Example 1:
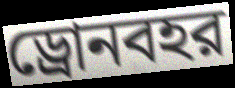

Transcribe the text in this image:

ড্রোনবহর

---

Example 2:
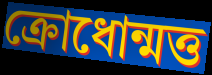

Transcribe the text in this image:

ক্রোধোন্মত্ত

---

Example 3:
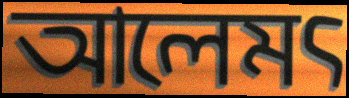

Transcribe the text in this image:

আলেমৎ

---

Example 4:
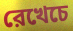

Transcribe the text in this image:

রেখেচে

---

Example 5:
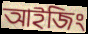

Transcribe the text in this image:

আইজিং